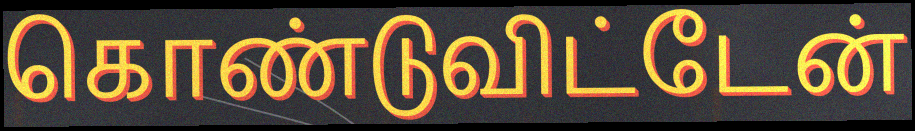
கொண்டுவிட்டேன்